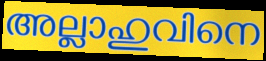
അല്ലാഹുവിനെ